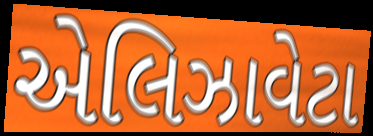
એલિઝાવેટા